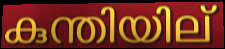
കുന്തിയില്